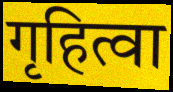
गृहित्वा